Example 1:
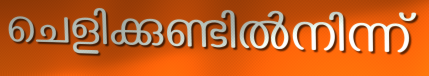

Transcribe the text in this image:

ചെളിക്കുണ്ടിൽനിന്ന്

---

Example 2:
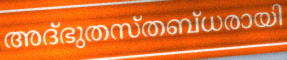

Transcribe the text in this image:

അദ്ഭുതസ്തബ്ധരായി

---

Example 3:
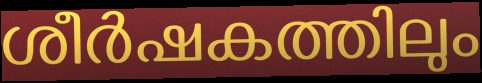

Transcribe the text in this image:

ശീർഷകത്തിലും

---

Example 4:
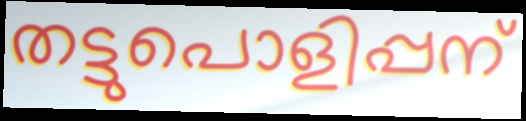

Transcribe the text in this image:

തട്ടുപൊളിപ്പന്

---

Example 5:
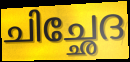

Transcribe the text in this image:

ചിച്ഛേദ